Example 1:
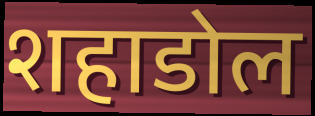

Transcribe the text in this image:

शहाडोल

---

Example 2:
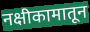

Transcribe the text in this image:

नक्षीकामातून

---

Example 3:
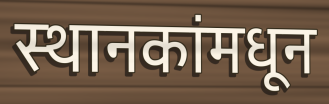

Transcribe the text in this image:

स्थानकांमधून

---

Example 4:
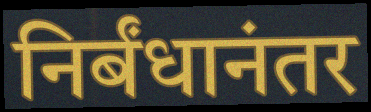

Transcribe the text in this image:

निर्बंधानंतर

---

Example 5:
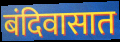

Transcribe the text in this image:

बंदिवासात